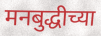
मनबुद्धीच्या